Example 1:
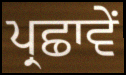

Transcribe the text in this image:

ਪ੍ਰਛਾਵੇਂ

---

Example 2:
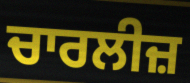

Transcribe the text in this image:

ਚਾਰਲੀਜ਼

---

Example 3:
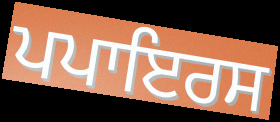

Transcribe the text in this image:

ਪਪਾਇਰਸ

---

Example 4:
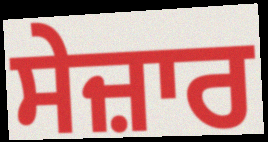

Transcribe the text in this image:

ਸੇਜ਼ਾਰ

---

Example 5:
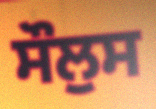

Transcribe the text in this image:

ਸੌਲੁਸ